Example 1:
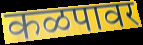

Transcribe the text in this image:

कळपावर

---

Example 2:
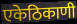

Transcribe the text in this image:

एकेठिकाणी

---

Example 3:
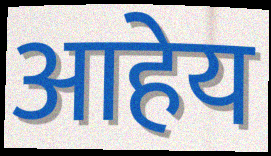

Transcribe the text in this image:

आहेय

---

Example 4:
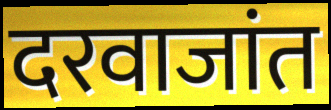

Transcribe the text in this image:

दरवाजांत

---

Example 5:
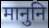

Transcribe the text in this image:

मानुनि